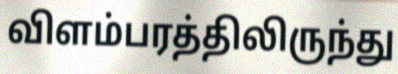
விளம்பரத்திலிருந்து